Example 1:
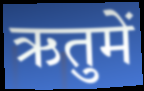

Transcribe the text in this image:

ऋतुमें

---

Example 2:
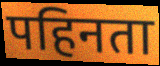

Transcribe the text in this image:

पहिनता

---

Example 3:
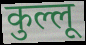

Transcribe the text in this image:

कुल्लू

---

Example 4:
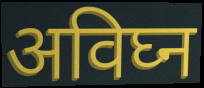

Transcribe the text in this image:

अविघ्न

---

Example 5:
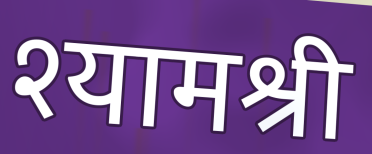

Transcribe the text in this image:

श्यामश्री